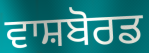
ਵਾਸ਼ਬੋਰਡ